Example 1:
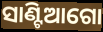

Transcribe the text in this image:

ସାଣ୍ଟିଆଗୋ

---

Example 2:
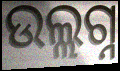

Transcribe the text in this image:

ଉଲ୍ଲଗ୍ନ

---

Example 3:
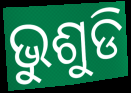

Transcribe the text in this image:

ଭୁଶୁଡି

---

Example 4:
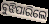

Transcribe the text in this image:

ବୁଝିପାରିଲେ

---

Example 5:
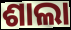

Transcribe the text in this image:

ଶାଲା